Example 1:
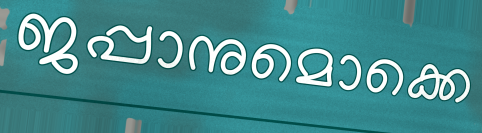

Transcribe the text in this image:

ജപ്പാനുമൊക്കെ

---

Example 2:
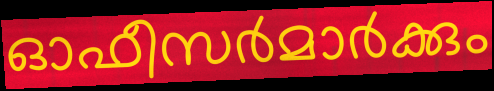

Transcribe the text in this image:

ഓഫീസർമാർക്കും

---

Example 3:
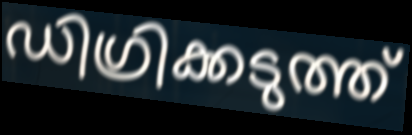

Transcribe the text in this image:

ഡിഗ്രിക്കടുത്ത്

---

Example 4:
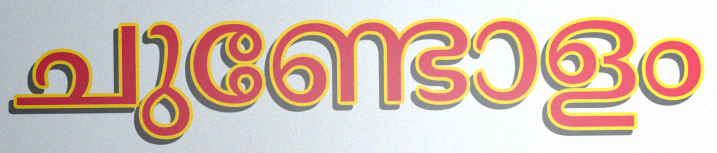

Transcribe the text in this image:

ചുണ്ടോളം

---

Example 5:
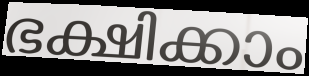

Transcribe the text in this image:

ഭക്ഷിക്കാം